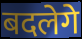
बदलेगे